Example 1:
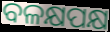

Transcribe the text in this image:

ବଳକ୍ଷପକ୍ଷ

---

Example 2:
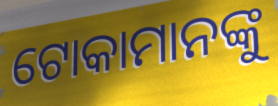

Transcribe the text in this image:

ଟୋକାମାନଙ୍କୁ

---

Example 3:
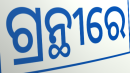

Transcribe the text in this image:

ଗ୍ରନ୍ଥୀରେ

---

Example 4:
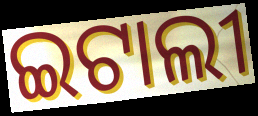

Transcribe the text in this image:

ଇଟାଲୀ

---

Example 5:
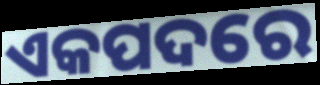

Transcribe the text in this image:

ଏକପଦରେ